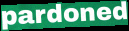
pardoned